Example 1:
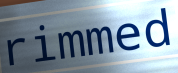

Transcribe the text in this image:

rimmed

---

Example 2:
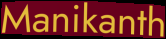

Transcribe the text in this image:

Manikanth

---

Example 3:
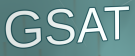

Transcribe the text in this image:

GSAT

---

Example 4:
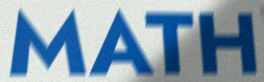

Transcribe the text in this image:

MATH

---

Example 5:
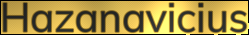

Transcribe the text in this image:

Hazanavicius